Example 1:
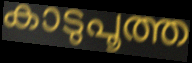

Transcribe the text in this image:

കാടുപൂത്ത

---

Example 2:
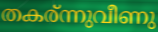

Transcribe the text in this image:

തകര്ന്നുവീണു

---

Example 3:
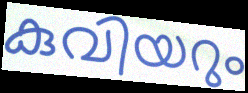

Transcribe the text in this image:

കുവിയറും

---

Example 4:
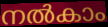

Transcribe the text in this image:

നൽകാം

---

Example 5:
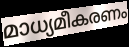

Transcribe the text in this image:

മാധ്യമീകരണം